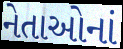
નેતાઓનાં